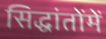
सिद्धांतोंमें